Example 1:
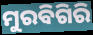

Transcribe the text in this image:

ମୁରବିଗିରି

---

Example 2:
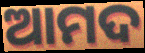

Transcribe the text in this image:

ଆମଦ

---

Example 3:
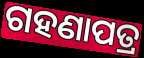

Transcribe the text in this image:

ଗହଣାପତ୍ର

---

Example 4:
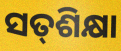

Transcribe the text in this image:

ସତ୍‌ଶିକ୍ଷା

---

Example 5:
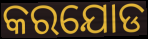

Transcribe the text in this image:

କରଯୋଡ